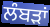
ਲੰਬੜਾਂ